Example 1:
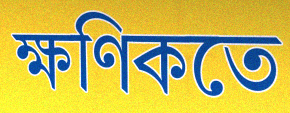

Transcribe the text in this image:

ক্ষণিকতে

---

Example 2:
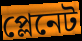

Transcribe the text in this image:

প্লেনেট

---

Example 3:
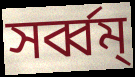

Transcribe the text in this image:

সৰ্ব্বম্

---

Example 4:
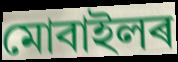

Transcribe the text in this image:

মোবাইলৰ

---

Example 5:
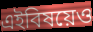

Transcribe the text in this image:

এইবিষয়েও